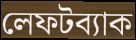
লেফটব্যাক